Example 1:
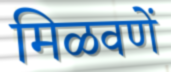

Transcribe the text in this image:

मिळवणें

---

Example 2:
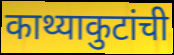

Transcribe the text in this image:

काथ्याकुटांची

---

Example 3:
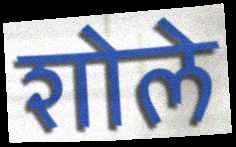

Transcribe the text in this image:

शोले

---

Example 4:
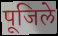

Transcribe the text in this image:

पूजिले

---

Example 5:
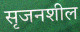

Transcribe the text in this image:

सृजनशील